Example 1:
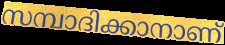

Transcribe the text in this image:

സമ്പാദിക്കാനാണ്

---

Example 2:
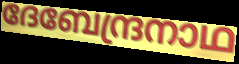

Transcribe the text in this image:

ദേബേന്ദ്രനാഥ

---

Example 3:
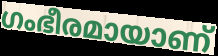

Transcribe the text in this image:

ഗംഭീരമായാണ്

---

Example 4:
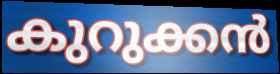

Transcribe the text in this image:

കുറുക്കൻ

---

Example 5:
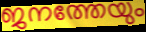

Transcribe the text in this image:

ജനത്തേയും